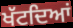
ਖੱਟਦਿਆਂ